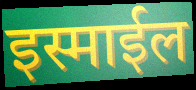
इस्माईल